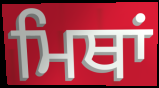
ਮਿਥਾਂ